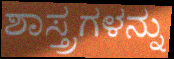
ಶಾಸ್ತ್ರಗಳನ್ನು